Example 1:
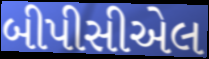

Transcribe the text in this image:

બીપીસીએલ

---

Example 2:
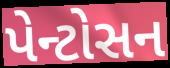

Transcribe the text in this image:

પેન્ટોસન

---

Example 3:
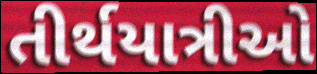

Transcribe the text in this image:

તીર્થયાત્રીઓ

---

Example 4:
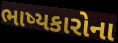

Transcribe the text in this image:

ભાષ્યકારોના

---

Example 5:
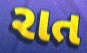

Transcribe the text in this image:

રાત